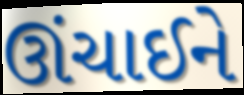
ઊંચાઈને